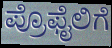
ಪ್ರೊಫೈಲಿಗೆ